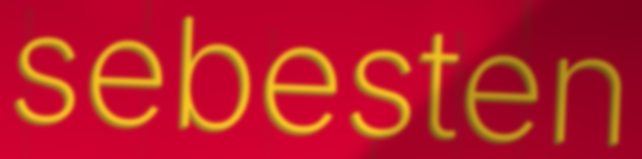
sebesten